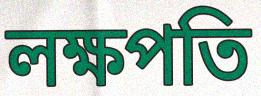
লক্ষপতি